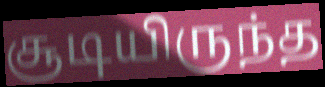
சூடியிருந்த